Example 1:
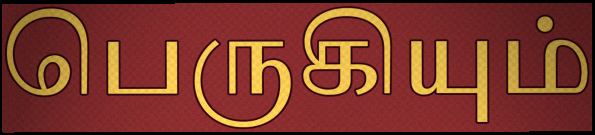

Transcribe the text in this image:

பெருகியும்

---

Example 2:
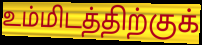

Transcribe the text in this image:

உம்மிடத்திற்குக்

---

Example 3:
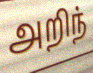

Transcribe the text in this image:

அறிந்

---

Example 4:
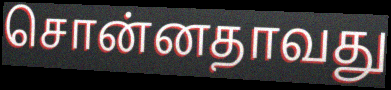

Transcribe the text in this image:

சொன்னதாவது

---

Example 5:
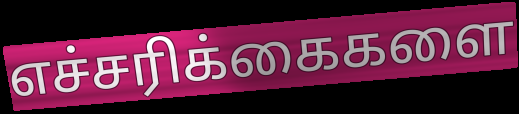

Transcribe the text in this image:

எச்சரிக்கைகளை